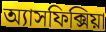
অ্যাসফিক্সিয়া